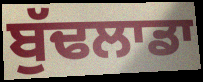
ਬੁੱਢਲਾਡਾ